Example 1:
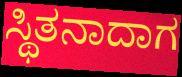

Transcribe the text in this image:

ಸ್ಥಿತನಾದಾಗ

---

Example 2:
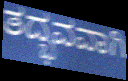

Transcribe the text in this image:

ತದ್ಭವವಾಗಿ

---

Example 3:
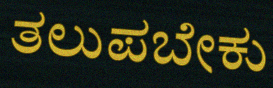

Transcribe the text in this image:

ತಲುಪಬೇಕು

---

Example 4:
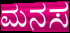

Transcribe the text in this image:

ಮನಸ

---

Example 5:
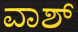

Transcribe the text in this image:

ವಾಶ್